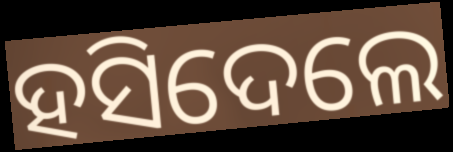
ହସିଦେଲେ